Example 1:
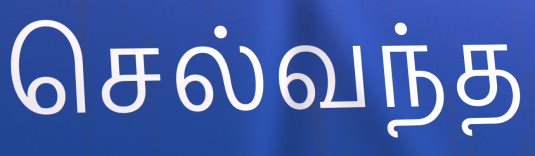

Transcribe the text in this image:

செல்வந்த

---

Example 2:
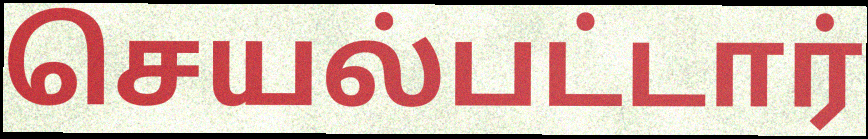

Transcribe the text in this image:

செயல்பட்டார்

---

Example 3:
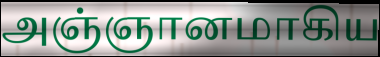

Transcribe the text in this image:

அஞ்ஞானமாகிய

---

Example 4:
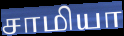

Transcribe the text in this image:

சாமியா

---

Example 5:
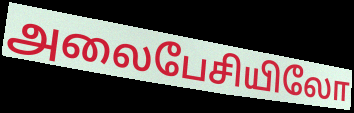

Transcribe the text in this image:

அலைபேசியிலோ